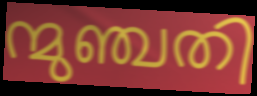
ന്മുഞ്ചതി